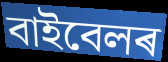
বাইবেলৰ